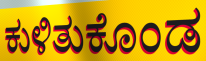
ಕುಳಿತುಕೊಂಡ